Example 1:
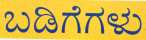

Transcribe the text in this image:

ಬಡಿಗೆಗಳು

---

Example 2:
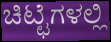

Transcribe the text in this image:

ಚಿಟ್ಟೆಗಳಲ್ಲಿ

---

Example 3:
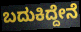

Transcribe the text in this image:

ಬದುಕಿದ್ದೇನೆ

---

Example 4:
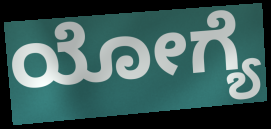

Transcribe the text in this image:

ಯೋಗ್ಯೆ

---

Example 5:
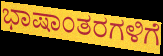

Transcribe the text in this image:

ಭಾಷಾಂತರಗಳಿಗೆ